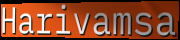
Harivamsa